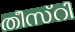
തീസ്റി